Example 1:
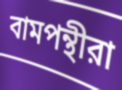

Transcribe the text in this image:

বামপন্থীরা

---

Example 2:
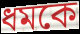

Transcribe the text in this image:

ধমকে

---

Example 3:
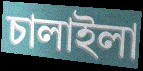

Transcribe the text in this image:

চালাইলা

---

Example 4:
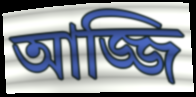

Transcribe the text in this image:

আজ্জি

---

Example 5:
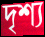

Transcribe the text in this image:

দৃশ্য়